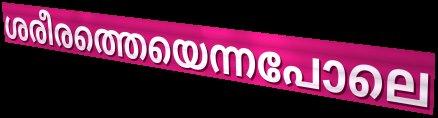
ശരീരത്തെയെന്നപോലെ